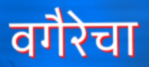
वगैरेचा